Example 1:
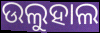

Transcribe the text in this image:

ଉଲୁହାଲ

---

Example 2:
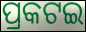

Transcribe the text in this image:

ପ୍ରକଟଇ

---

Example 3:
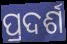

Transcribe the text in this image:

ପ୍ରଦର୍ଶ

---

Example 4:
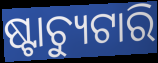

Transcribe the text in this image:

ଷ୍ଟାଚ୍ୟୁଟାରି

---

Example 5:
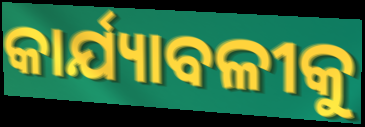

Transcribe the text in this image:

କାର୍ଯ୍ୟାବଳୀକୁ